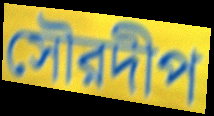
সৌরদীপ